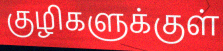
குழிகளுக்குள்